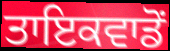
ਤਾਇਕਵਾਡੋਂ